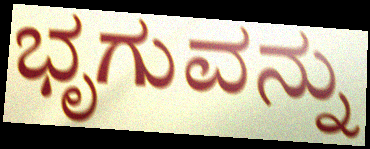
ಭೃಗುವನ್ನು